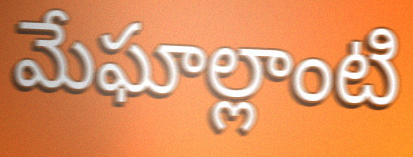
మేఘాల్లాంటి